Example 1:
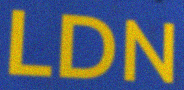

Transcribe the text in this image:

LDN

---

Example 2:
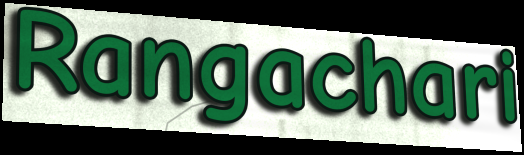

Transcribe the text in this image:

Rangachari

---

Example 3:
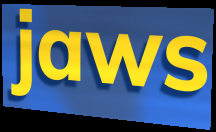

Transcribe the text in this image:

jaws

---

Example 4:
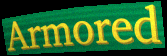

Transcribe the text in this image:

Armored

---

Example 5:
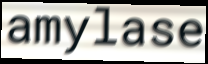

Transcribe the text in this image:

amylase